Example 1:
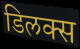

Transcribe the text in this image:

डिलक्स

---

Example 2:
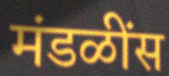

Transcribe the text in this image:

मंडळींस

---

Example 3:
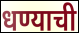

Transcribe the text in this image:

धण्याची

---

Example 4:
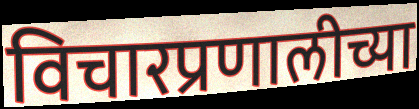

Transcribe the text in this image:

विचारप्रणालीच्या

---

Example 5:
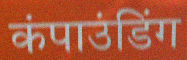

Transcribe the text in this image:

कंपाउंडिंग